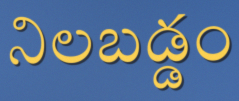
నిలబడ్డం